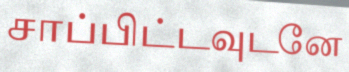
சாப்பிட்டவுடனே